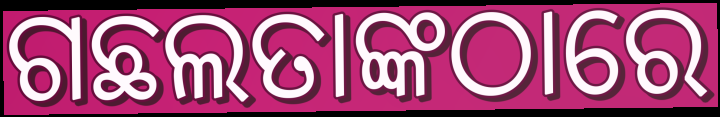
ଗଛଲତାଙ୍କଠାରେ